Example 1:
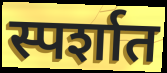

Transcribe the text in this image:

स्पर्शात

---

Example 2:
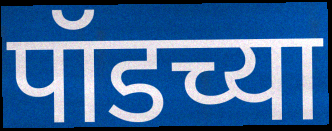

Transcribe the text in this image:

पॉडच्या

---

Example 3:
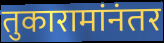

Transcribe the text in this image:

तुकारामांनंतर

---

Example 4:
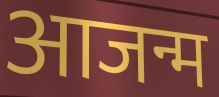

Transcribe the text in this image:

आजन्म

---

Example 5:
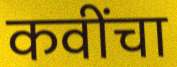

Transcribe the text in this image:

कवींचा